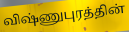
விஷ்ணுபுரத்தின்